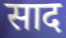
साद